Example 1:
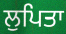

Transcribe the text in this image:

ਲੁਪਿਤਾ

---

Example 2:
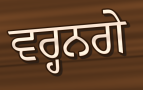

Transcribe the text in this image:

ਵਰ੍ਹਨਗੇ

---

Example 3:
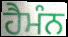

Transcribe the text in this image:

ਹੈਮੰਨ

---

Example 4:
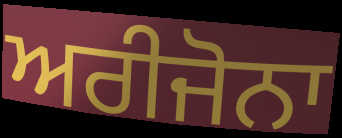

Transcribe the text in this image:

ਅਰੀਜੋਨਾ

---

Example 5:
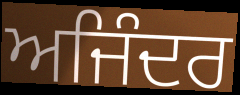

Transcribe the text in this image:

ਅਜਿੰਦਰ